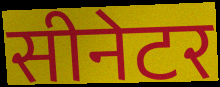
सीनेटर